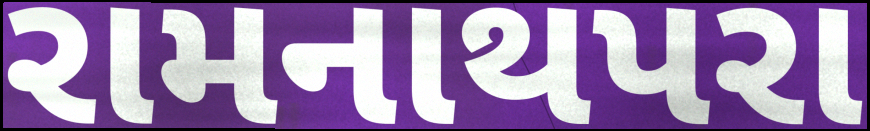
રામનાથપરા